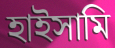
হাইসামি